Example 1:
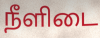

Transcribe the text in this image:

நீளிடை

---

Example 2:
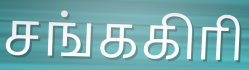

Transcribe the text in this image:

சங்ககிரி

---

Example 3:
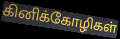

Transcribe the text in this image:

கினிக்கோழிகள்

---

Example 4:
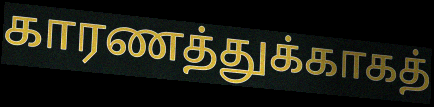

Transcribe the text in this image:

காரணத்துக்காகத்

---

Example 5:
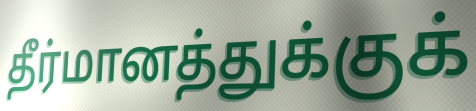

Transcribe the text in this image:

தீர்மானத்துக்குக்